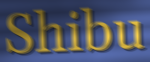
Shibu